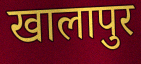
खालापुर